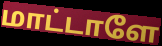
மாட்டாளே